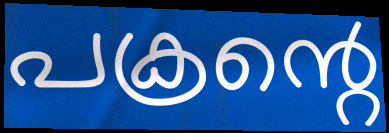
പക്രന്റെ